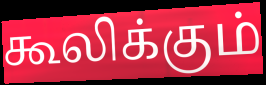
கூலிக்கும்